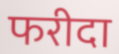
फरीदा